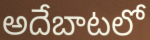
అదేబాటలో